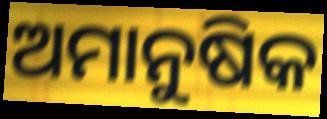
ଅମାନୁଷିକ